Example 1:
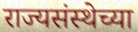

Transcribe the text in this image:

राज्यसंस्थेच्या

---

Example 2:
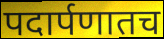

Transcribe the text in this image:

पदार्पणातच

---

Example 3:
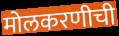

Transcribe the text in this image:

मोलकरणीची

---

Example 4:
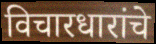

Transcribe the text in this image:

विचारधारांचे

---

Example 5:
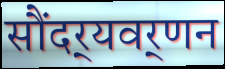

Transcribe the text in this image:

सौंदर्यवर्णन